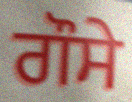
ਗੌਸੇ